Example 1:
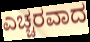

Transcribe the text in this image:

ಎಚ್ಚರವಾದ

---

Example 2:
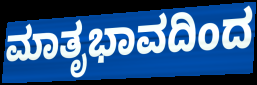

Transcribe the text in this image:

ಮಾತೃಭಾವದಿಂದ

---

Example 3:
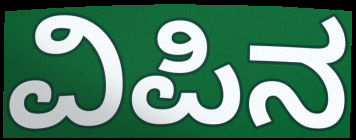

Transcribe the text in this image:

ವಿಪಿನ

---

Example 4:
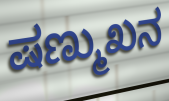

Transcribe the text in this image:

ಷಣ್ಮುಖನ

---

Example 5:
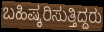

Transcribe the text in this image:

ಬಹಿಷ್ಕರಿಸುತ್ತಿದ್ದರು